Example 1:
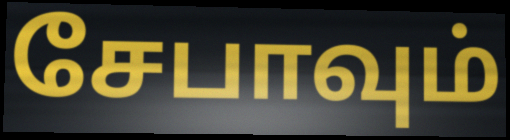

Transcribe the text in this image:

சேபாவும்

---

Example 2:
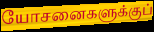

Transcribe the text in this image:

யோசனைகளுக்குப்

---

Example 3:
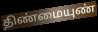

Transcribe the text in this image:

திண்மையுண்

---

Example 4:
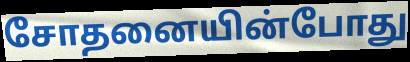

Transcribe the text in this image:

சோதனையின்போது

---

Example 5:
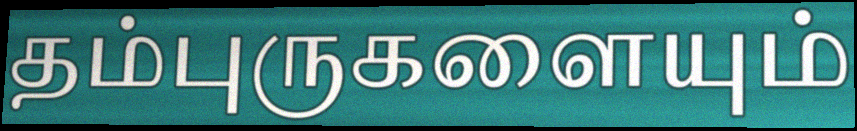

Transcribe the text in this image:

தம்புருகளையும்